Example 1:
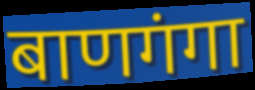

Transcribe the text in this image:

बाणगंगा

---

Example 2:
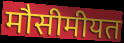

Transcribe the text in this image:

मौसीमीयत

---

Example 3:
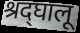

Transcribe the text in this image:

श्रद्घालू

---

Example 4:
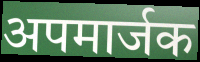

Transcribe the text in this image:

अपमार्जक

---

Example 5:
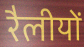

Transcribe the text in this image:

रैलीयों